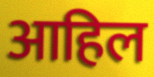
आहिल